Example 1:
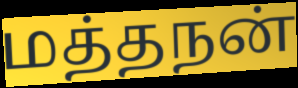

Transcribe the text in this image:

மத்தநன்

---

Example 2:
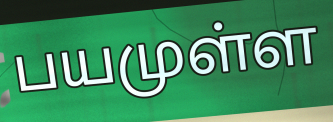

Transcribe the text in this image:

பயமுள்ள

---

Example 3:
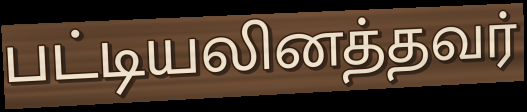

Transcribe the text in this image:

பட்டியலினத்தவர்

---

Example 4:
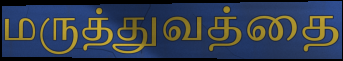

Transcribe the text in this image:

மருத்துவத்தை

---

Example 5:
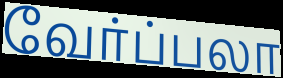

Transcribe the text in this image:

வேர்ப்பலா